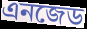
এনজেড